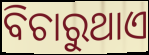
ବିଚାରୁଥାଏ